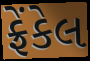
ફ્રેંકેલ